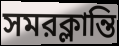
সমরক্লান্তি